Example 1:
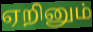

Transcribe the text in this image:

ஏறினும்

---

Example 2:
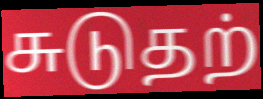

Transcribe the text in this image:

சுடுதற்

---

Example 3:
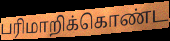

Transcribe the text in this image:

பரிமாறிக்கொண்ட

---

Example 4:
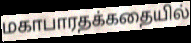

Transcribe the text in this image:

மகாபாரதக்கதையில்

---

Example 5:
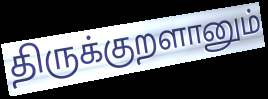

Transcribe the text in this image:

திருக்குறளானும்